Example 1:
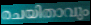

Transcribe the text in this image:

രചയിതാവും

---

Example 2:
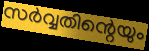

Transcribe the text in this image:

സർവ്വതിന്റെയും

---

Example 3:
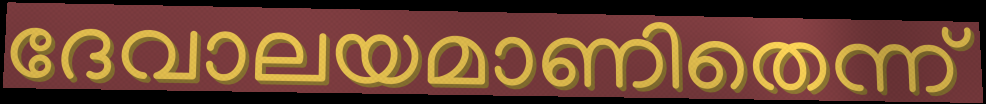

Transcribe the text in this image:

ദേവാലയമാണിതെന്ന്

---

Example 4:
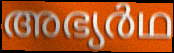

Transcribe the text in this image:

അഭ്യർഥ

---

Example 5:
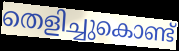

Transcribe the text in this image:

തെളിച്ചുകൊണ്ട്